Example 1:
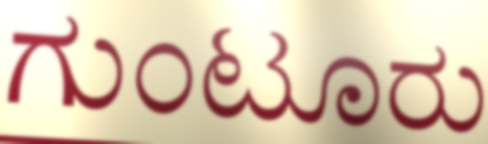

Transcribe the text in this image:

ಗುಂಟೂರು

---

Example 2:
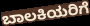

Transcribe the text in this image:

ಬಾಲಕಿಯರಿಗೆ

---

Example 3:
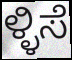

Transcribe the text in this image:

ಳ್ಳಿಸೆ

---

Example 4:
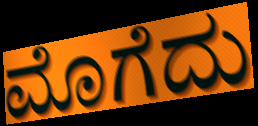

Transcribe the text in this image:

ಮೊಗೆದು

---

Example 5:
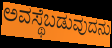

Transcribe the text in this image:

ಅವಸ್ಥೆಬಡುವುದನು